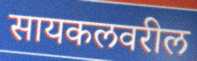
सायकलवरील